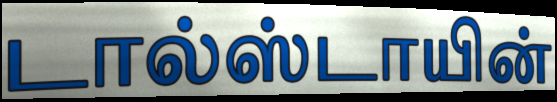
டால்ஸ்டாயின்